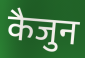
कैजुन